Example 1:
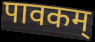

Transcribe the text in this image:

पावकम्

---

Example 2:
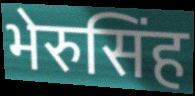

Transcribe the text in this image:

भेरुसिंह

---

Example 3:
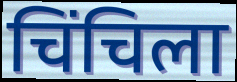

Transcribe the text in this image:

चिंचिला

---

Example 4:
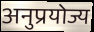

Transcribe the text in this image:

अनुप्रयोज्य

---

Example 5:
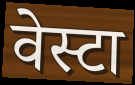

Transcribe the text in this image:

वेस्टा